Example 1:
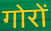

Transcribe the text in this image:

गोरों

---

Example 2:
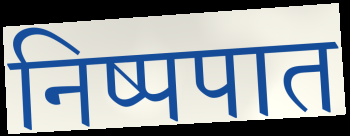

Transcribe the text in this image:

निष्पपात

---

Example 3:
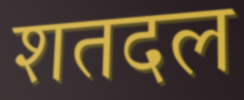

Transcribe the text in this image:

शतदल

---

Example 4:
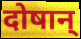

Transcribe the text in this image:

दोषान्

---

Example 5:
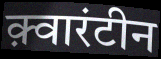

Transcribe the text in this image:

क़्वारंटीन